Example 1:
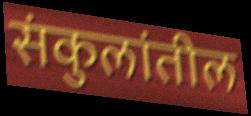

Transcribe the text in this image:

संकुलांतील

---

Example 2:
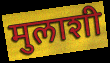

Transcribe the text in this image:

मुलाशी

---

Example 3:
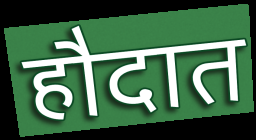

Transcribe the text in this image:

हौदात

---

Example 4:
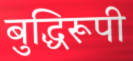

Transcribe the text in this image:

बुद्धिरूपी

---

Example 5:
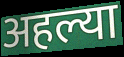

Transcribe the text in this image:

अहल्या